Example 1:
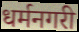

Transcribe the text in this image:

धर्मनगरी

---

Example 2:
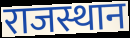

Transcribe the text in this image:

राजस्थान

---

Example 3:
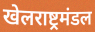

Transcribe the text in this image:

खेलराष्ट्रमंडल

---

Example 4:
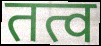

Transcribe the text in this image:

तत्व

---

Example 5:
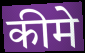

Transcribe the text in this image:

कीमे